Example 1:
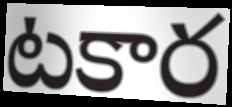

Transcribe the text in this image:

టకార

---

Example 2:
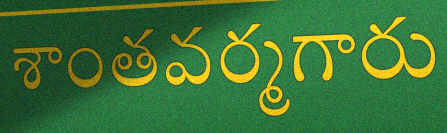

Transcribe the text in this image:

శాంతవర్మగారు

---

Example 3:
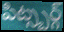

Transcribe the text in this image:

పిట్స్బర్గ్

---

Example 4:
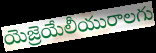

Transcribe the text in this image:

యెజ్రెయేలీయురాలగు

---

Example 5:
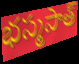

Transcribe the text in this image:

భస్మసాత్